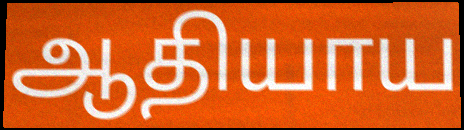
ஆதியாய